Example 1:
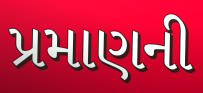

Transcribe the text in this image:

પ્રમાણની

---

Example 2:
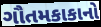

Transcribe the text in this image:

ગૌતમકાકાનો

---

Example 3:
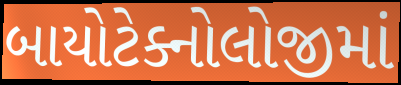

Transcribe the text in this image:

બાયોટેક્નોલોજીમાં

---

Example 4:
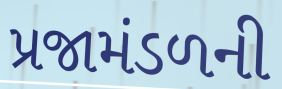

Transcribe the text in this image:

પ્રજામંડળની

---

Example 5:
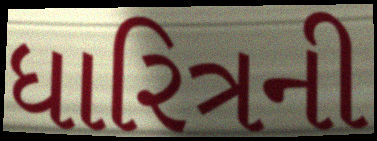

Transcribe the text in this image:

ધારિત્રની